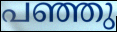
പഞ്ഞു